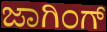
ಜಾಗಿಂಗ್